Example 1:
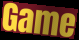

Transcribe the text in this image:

Game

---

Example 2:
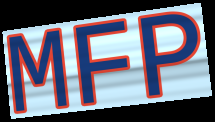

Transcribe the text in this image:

MFP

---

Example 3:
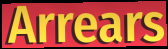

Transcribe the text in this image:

Arrears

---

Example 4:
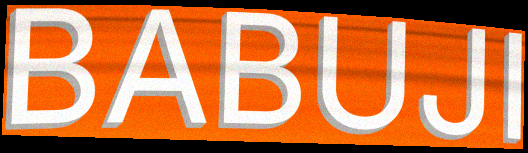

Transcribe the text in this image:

BABUJI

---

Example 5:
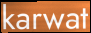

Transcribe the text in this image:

karwat